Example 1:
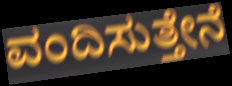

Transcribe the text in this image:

ವಂದಿಸುತ್ತೇನೆ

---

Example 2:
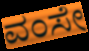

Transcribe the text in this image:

ವಂಸೇ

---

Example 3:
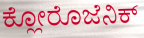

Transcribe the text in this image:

ಕ್ಲೋರೊಜೆನಿಕ್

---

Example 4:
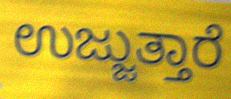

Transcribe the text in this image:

ಉಜ್ಜುತ್ತಾರೆ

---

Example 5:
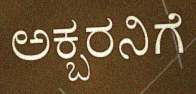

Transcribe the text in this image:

ಅಕ್ಬರನಿಗೆ